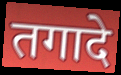
तगादे